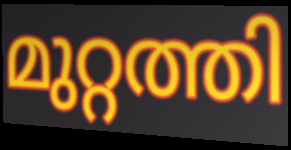
മുറ്റത്തി